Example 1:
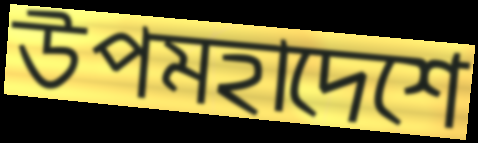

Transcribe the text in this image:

উপমহাদেশে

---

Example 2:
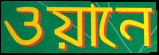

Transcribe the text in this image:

ওয়ানে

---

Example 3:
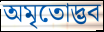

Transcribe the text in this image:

অমৃতোদ্ভব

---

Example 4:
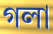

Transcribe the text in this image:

গলা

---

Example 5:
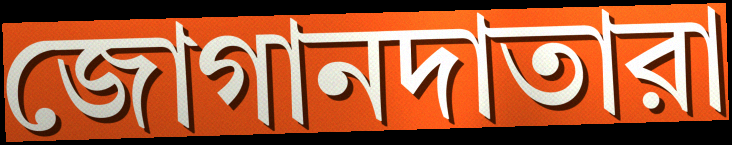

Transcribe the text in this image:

জোগানদাতারা